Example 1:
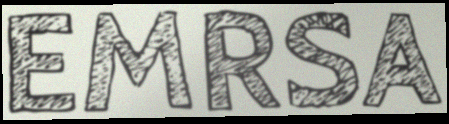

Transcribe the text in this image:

EMRSA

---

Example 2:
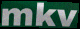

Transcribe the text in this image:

mkv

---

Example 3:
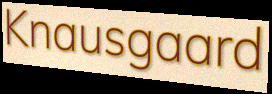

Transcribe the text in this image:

Knausgaard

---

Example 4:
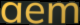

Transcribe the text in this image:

aem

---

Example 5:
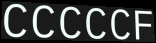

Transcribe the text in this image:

CCCCCF